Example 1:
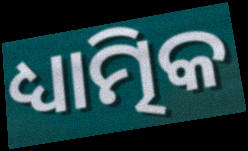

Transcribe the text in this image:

ଧ୍ୟାତ୍ମିକ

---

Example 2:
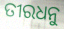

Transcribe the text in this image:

ତୀରଧନୁ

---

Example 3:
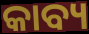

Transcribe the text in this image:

କାବ୍ୟ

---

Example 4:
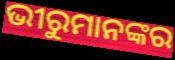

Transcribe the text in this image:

ଭୀରୁମାନଙ୍କର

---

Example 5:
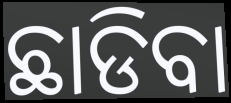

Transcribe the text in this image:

ଛାଡିବା